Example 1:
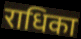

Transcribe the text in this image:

राधिका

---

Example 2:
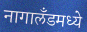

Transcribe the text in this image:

नागालॅंडमध्ये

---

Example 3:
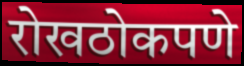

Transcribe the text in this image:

रोखठोकपणे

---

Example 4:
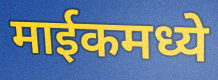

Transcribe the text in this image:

माईकमध्ये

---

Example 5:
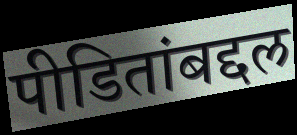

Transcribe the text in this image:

पीडितांबद्दल